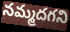
నమ్మదగని